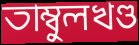
তাম্বুলখণ্ড